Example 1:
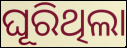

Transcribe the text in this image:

ଘୂରିଥିଲା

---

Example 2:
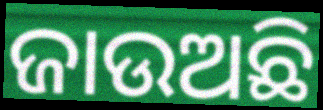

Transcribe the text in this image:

ଜାଉଅଛି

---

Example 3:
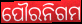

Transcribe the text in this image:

ପୌରନିଗମ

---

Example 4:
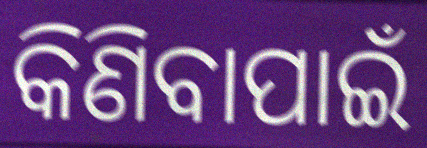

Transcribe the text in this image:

କିଣିବାପାଇଁ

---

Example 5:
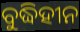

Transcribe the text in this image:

ବୁଦ୍ଧିହୀନ